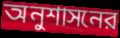
অনুশাসনের